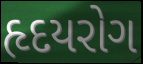
હૃદયરોગ